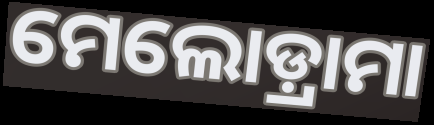
ମେଲୋଡ଼୍ରାମା